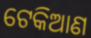
ଟେକିଆଣ